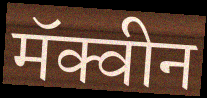
मॅक्वीन